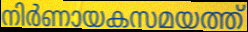
നിർണായകസമയത്ത്